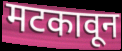
मटकावून